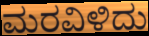
ಮರವಿಳಿದು